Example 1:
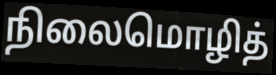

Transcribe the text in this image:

நிலைமொழித்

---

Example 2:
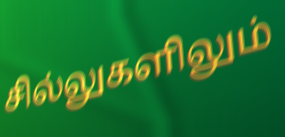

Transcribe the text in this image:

சில்லுகளிலும்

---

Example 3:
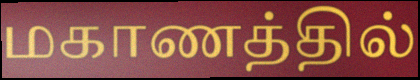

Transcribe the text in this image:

மகாணத்தில்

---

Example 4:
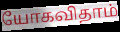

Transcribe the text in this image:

யோகவிதாம்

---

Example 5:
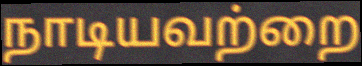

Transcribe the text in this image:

நாடியவற்றை